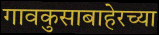
गावकुसाबाहेरच्या